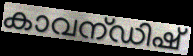
കാവന്ഡിഷ്